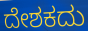
ದೇಶಕದು